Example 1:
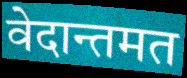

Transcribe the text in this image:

वेदान्तमत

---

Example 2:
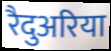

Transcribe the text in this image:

रैदुअरिया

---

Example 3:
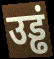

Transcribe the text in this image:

उड्ढं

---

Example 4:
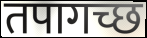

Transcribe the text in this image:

तपागच्छ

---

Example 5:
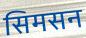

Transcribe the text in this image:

सिमसन